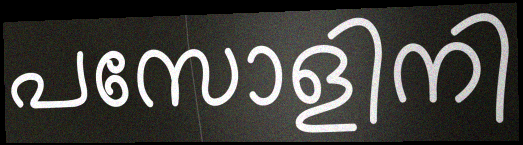
പസോളിനി